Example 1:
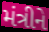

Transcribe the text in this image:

મંત્રીને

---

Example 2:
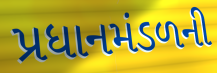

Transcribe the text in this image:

પ્રધાનમંડળની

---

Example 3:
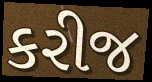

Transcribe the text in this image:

કરીજ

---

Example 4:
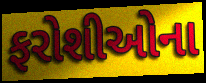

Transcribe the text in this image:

ફરોશીઓના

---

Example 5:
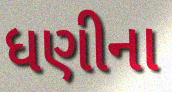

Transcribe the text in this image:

ધણીના